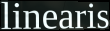
linearis